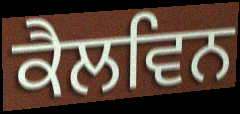
ਕੈਲਵਿਨ